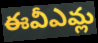
ఈవీఎమ్ల